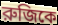
রুজিকে